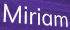
Miriam